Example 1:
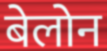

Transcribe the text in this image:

बेलोन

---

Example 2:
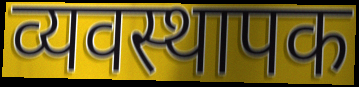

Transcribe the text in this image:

व्यवस्थापक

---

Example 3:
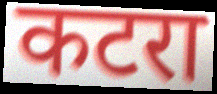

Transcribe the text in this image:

कटरा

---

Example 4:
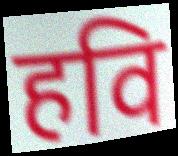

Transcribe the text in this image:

हवि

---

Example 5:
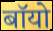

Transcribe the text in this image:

बॉयो